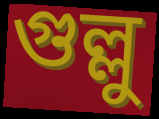
গুল্লু